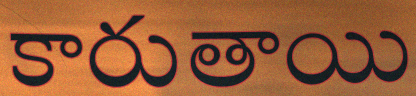
కారుతాయి